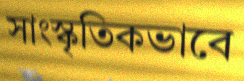
সাংস্কৃতিকভাবে